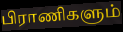
பிராணிகளும்